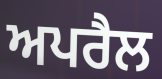
ਅਪਰੈਲ